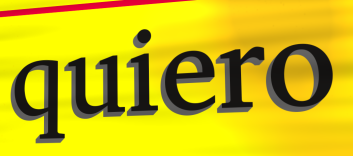
quiero